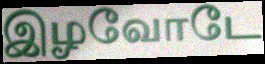
இழவோடே